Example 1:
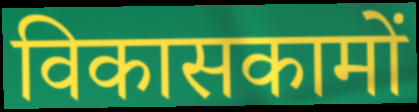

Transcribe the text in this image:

विकासकामों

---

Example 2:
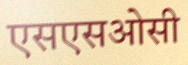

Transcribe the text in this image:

एसएसओसी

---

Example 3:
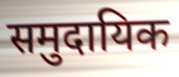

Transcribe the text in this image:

समुदायिक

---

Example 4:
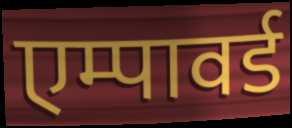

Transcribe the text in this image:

एम्पावर्ड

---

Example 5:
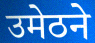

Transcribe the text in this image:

उमेठने